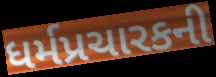
ધર્મપ્રચારકની